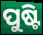
ପୁଷ୍ଟି